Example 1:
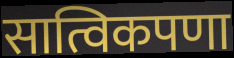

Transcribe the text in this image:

सात्विकपणा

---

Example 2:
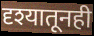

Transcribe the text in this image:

दृश्यातूनही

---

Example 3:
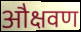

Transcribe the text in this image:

औक्षवण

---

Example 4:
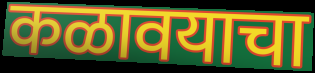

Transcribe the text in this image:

कळावयाचा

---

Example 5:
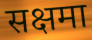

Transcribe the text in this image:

सक्षमा